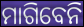
ମାଗିବେନି